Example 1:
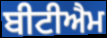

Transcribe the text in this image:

ਬੀਟੀਐਮ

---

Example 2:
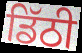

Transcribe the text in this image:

ਡਿੱਠੀ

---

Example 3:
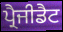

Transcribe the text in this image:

ਪ੍ਰੈਜੀਡੈਟ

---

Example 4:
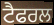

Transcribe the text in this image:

ਟੈਫਰਲ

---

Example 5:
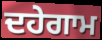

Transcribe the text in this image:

ਦਹੇਗਾਮ